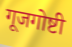
गूजगोष्टी